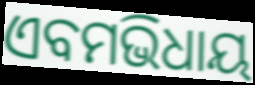
ଏବମଭିଧାୟ